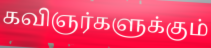
கவிஞர்களுக்கும்